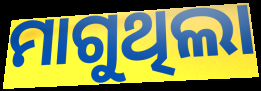
ମାଗୁଥିଲା